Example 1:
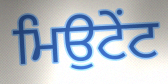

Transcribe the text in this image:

ਮਿਉਟੇਂਟ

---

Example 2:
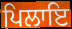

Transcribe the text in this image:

ਪਿਲਾਇ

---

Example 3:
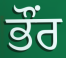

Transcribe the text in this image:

ਭੌਂਰ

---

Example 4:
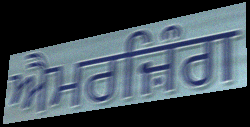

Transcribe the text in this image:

ਐਮਰਜ਼ਿੰਗ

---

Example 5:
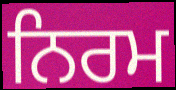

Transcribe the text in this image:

ਨਿਰਮ